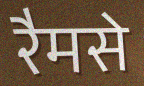
रैमसे